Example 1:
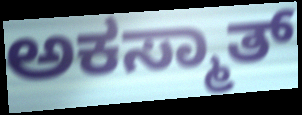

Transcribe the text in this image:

ಅಕಸ್ಮಾತ್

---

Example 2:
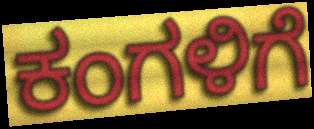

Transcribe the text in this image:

ಕಂಗಳಿಗೆ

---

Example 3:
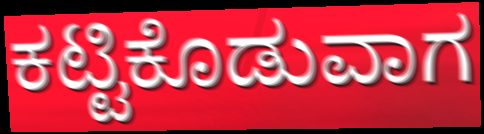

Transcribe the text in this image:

ಕಟ್ಟಿಕೊಡುವಾಗ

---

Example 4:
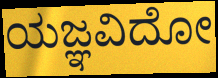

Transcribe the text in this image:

ಯಜ್ಞವಿದೋ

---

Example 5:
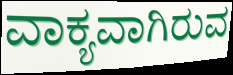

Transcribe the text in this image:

ವಾಕ್ಯವಾಗಿರುವ